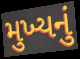
મુખ્યનું